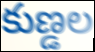
కుణ్డల